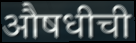
औषधीची